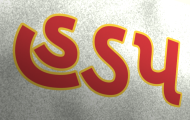
હડપ